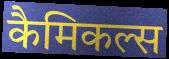
कैमिकल्स